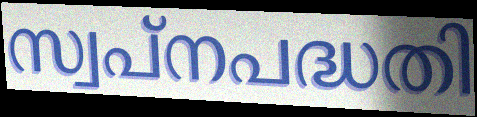
സ്വപ്നപദ്ധതി